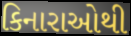
કિનારાઓથી